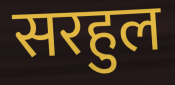
सरहुल